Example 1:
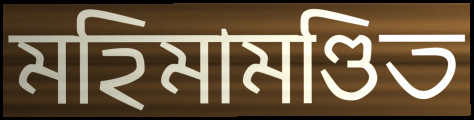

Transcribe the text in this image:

মহিমামণ্ডিত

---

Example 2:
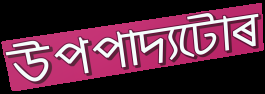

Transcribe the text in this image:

উপপাদ্যটোৰ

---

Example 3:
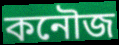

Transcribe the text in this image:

কনৌজ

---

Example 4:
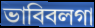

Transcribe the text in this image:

ভাবিবলগা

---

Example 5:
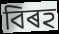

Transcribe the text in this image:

বিৰহ